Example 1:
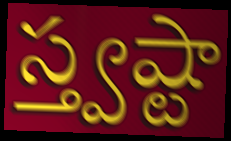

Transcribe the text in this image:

స్త్వష్టా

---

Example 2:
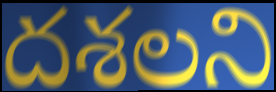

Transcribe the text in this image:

దశలని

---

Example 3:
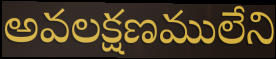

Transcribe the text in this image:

అవలక్షణములేని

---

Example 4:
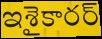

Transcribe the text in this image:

ఇశైకారర్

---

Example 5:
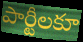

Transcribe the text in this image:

పార్టీలకూ